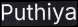
Puthiya